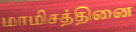
மாமிசத்தினை